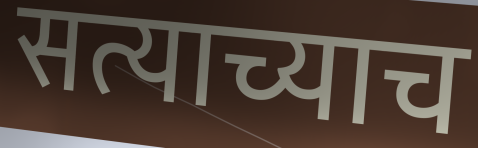
सत्याच्याच